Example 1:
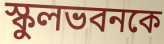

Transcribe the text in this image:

স্কুলভবনকে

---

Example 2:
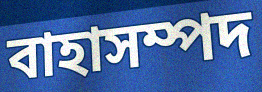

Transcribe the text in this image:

বাহাসম্পদ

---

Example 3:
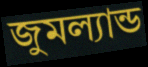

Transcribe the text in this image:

জুমল্যান্ড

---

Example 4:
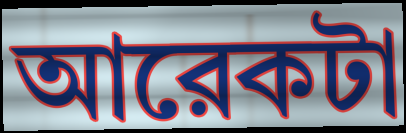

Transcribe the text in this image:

আরেকটা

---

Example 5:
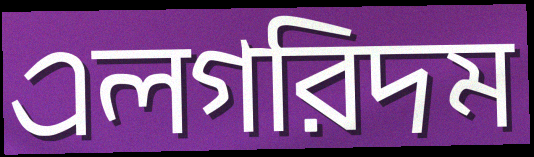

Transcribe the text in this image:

এলগরিদম